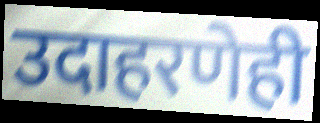
उदाहरणेही